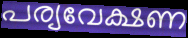
പര്യവേക്ഷണ